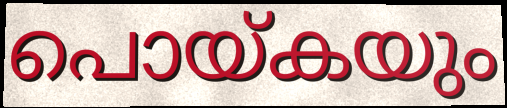
പൊയ്കയും